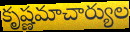
కృష్ణమాచార్యుల